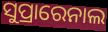
ସୁପ୍ରାରେନାଲ